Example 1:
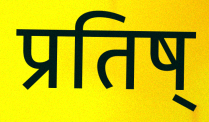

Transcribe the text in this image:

प्रतिष्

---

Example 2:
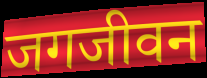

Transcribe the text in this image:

जगजीवन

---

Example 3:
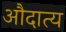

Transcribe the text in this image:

औदात्य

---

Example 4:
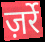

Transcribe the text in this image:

ज़र्रे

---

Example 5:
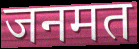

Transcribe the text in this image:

जनमत